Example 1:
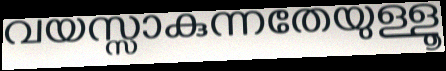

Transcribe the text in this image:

വയസ്സാകുന്നതേയുള്ളൂ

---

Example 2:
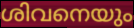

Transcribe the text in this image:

ശിവനെയും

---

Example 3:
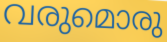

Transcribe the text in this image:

വരുമൊരു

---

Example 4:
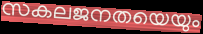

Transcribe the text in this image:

സകലജനതയെയും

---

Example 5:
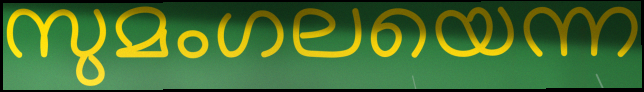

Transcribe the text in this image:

സുമംഗലയെന്ന